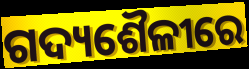
ଗଦ୍ୟଶୈଳୀରେ